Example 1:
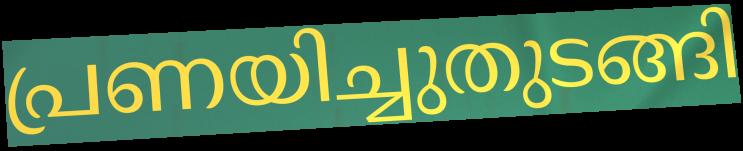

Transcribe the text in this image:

പ്രണയിച്ചുതുടങ്ങി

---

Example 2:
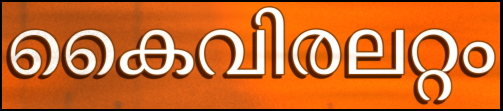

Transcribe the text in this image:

കൈവിരലറ്റം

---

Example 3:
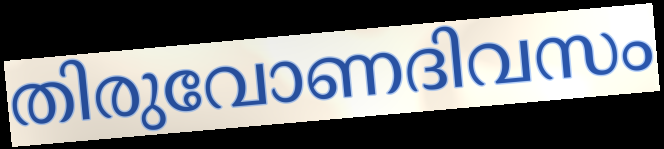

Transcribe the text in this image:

തിരുവോണദിവസം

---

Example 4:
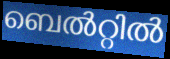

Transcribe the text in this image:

ബെൽറ്റിൽ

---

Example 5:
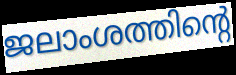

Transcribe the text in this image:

ജലാംശത്തിന്റെ